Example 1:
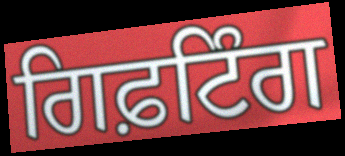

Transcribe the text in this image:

ਗਿਫ਼ਟਿੰਗ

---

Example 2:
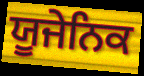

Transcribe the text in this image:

ਯੂਜੇਨਿਕ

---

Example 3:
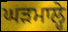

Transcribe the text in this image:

ਘੜਮਾਲ੍ਹੇ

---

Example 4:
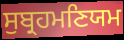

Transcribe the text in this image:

ਸੁਬ੍ਰਹਮਣਿਯਮ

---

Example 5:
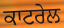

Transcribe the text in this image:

ਕਾਟਰੇਲ